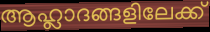
ആഹ്ലാദങ്ങളിലേക്ക്